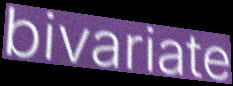
bivariate